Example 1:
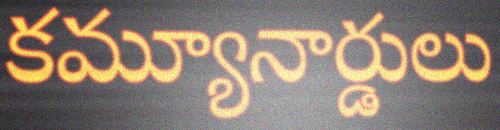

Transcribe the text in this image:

కమ్యూనార్డులు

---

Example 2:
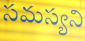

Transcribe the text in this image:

సమస్యని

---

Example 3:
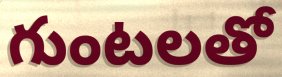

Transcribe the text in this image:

గుంటలతో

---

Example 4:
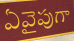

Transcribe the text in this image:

ఏవైపుగా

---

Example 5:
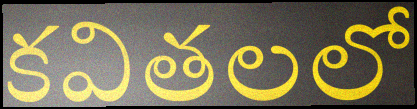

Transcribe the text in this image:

కవితలలో